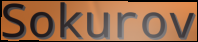
Sokurov